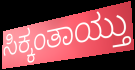
ಸಿಕ್ಕಂತಾಯ್ತು